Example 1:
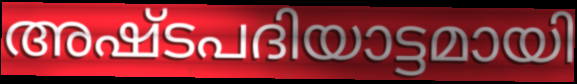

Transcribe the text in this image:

അഷ്ടപദിയാട്ടമായി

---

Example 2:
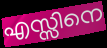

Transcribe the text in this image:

എസ്സിനെ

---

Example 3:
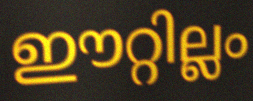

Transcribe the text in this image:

ഈറ്റില്ലം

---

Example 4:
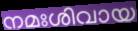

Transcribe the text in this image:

നമഃശിവായ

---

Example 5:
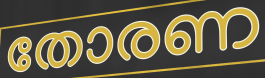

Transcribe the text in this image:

തോരണ